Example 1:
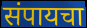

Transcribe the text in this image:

संपायचा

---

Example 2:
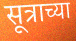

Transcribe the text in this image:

सूत्राच्या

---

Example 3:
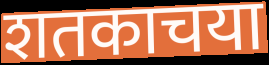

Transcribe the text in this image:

शतकाचया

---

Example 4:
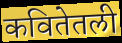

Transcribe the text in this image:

कवितेतली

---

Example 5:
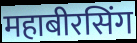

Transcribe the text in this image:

महाबीरसिंग